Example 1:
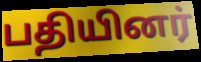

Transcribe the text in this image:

பதியினர்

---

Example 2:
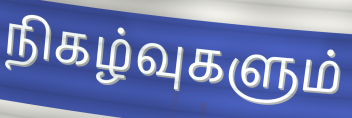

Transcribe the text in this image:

நிகழ்வுகளும்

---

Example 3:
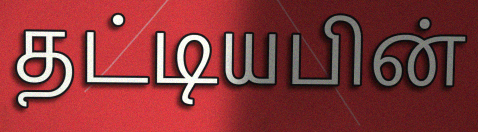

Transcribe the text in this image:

தட்டியபின்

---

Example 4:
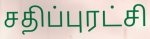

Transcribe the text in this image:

சதிப்புரட்சி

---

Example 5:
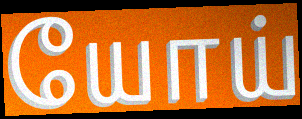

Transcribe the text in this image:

யோய்